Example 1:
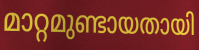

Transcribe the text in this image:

മാറ്റമുണ്ടായതായി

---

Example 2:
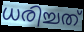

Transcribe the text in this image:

ധരിച്ചത്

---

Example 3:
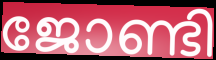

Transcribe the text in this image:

ജോണ്ടി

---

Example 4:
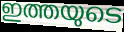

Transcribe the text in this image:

ഇത്തയുടെ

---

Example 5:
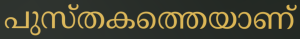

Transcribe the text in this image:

പുസ്തകത്തെയാണ്